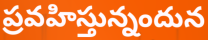
ప్రవహిస్తున్నందున